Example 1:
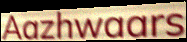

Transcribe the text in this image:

Aazhwaars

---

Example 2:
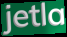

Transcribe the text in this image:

jetla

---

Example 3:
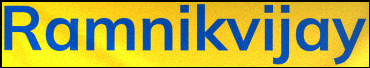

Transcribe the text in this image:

Ramnikvijay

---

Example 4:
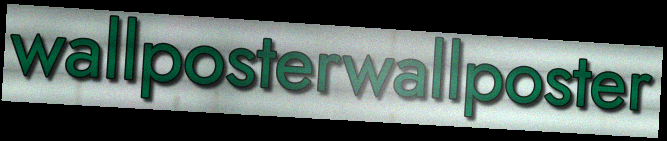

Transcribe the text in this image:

wallposterwallposter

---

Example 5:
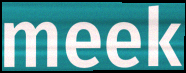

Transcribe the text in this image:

meek